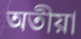
অতীয়া